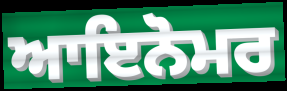
ਆਇਨੋਮਰ